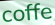
coffe